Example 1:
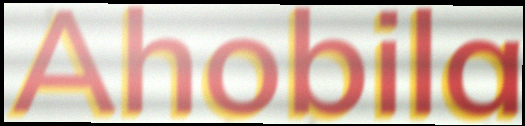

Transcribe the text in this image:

Ahobila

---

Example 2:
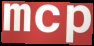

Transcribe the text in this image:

mcp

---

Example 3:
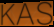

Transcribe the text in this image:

KAS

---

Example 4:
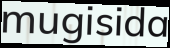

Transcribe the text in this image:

mugisida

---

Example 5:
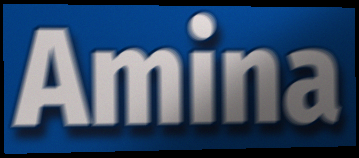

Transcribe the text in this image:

Amina